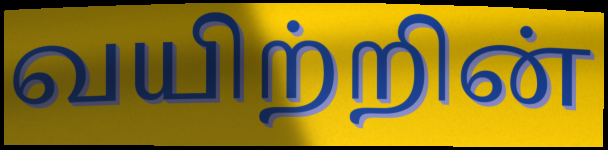
வயிற்றின்